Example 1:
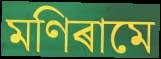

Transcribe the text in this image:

মণিৰামে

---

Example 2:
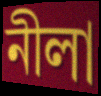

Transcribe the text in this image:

নীলা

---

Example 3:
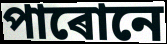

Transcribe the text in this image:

পাৰোনে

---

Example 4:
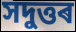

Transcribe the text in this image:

সদুত্তৰ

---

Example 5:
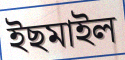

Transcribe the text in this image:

ইছমাইল